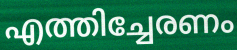
എത്തിച്ചേരണം